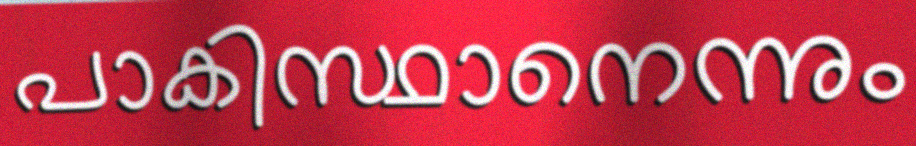
പാകിസ്ഥാനെന്നും